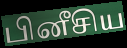
பினீசிய